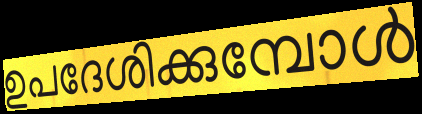
ഉപദേശിക്കുമ്പോൾ